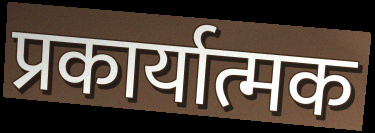
प्रकार्यात्मक